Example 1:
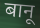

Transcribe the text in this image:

बानू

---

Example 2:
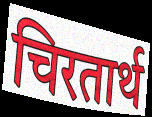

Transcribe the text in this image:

चिरतार्थ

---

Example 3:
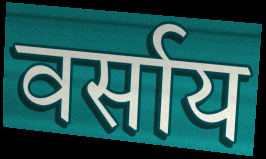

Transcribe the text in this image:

वर्साय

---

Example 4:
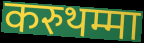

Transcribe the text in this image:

करुथम्मा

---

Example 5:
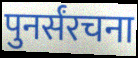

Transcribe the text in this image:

पुनर्संरचना